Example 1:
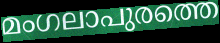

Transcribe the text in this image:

മംഗലാപുരത്തെ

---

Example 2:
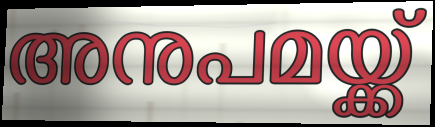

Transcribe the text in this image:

അനുപമയ്ക്ക്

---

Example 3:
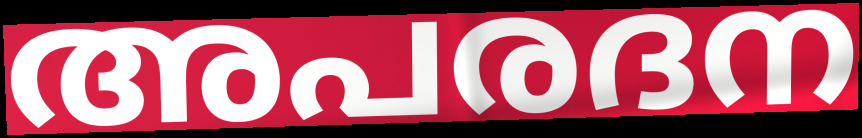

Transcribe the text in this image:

അപരദന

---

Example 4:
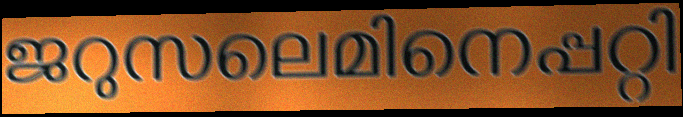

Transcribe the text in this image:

ജറുസലെമിനെപ്പറ്റി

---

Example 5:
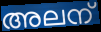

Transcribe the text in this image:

അലന്